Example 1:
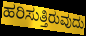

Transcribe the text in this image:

ಹರಿಸುತ್ತಿರುವುದು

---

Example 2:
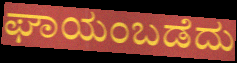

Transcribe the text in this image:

ಘಾಯಂಬಡೆದು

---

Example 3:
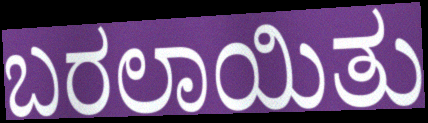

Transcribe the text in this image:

ಬರಲಾಯಿತು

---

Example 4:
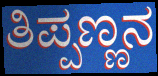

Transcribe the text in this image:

ತಿಪ್ಪಣ್ಣನ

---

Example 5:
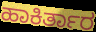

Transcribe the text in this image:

ಹಾಕಿರ್ತಾರ